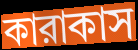
কারাকাস